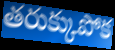
తరుక్కుపోక